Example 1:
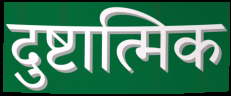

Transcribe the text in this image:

दुष्टात्मिक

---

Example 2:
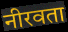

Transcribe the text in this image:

नीरवता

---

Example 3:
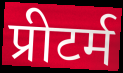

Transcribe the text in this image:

प्रीटर्म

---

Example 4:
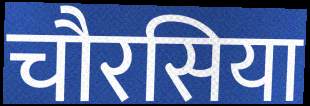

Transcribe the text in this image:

चौरसिया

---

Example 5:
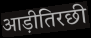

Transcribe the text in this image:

आड़ीतिरछी